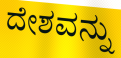
ದೇಶವನ್ನು